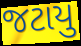
જટાયુ